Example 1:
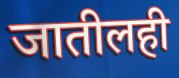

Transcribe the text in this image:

जातीलही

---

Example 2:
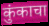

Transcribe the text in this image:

कुंकाचा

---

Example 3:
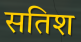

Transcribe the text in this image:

सतिश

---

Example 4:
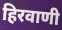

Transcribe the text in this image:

हिरवाणी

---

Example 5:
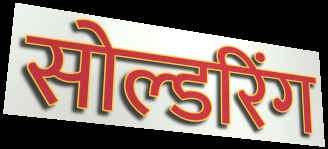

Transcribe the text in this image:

सोल्डरिंग